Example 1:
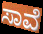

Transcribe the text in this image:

ಸಾವೆ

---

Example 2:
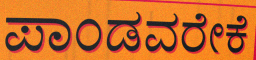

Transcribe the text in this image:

ಪಾಂಡವರೇಕೆ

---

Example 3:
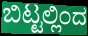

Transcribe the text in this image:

ಬಿಟ್ಟಲ್ಲಿಂದ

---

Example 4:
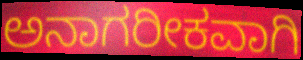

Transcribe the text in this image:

ಅನಾಗರೀಕವಾಗಿ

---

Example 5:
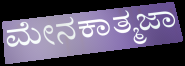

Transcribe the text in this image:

ಮೇನಕಾತ್ಮಜಾ